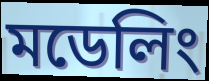
মডেলিং